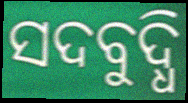
ସଦବୁଦ୍ଧି